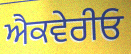
ਐਕਵੇਰੀਓ